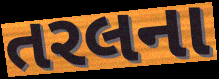
તરલના